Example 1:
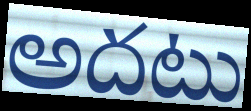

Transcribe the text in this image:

అదటు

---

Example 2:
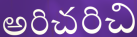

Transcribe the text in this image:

అరిచరిచి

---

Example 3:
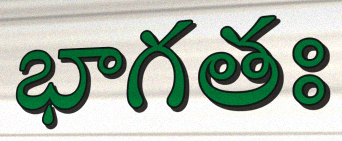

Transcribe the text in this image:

భాగతః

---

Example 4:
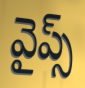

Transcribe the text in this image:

వైప్స్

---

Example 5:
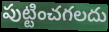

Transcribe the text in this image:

పుట్టించగలదు